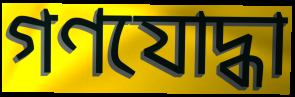
গণযোদ্ধা